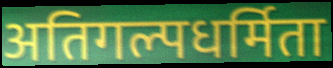
अतिगल्पधर्मिता